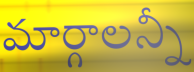
మార్గాలన్నీ